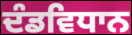
ਦੰਡਵਿਧਾਨ